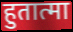
हुतात्मा